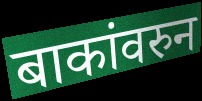
बाकांवरुन